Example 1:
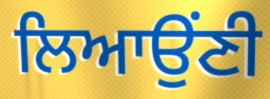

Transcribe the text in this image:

ਲਿਆਉਂਣੀ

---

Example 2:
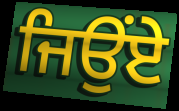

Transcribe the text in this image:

ਜਿਉਂਏ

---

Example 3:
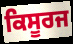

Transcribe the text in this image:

ਕਿਸੂਰਜ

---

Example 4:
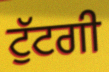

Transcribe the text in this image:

ਟੁੱਟਗੀ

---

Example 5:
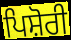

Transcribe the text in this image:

ਪਿਸ਼ੋਰੀ